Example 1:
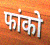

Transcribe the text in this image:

फांको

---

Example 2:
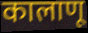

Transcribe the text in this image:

कालाणू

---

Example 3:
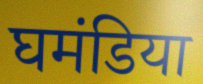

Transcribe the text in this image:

घमंडिया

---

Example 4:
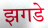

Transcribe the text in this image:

झगडे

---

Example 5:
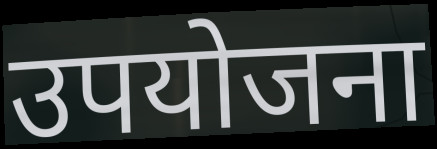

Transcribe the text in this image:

उपयोजना